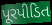
પૂરપીડિત